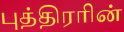
புத்திரரின்